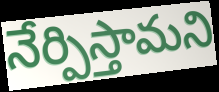
నేర్పిస్తామని